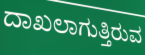
ದಾಖಲಾಗುತ್ತಿರುವ